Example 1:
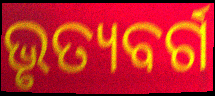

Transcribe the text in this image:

ଭୃତ୍ୟବର୍ଗ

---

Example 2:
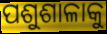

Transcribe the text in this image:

ପଶୁଶାଳାକୁ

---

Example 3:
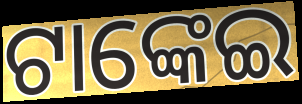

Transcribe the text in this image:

ଟାଙ୍କେଇ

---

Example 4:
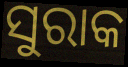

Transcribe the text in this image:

ସୁରାକ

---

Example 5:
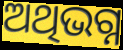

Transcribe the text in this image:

ଅଥିଭଗ୍ନ